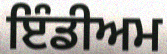
ਇੰਡੀਅਮ